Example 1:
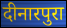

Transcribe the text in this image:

दीनारपुरा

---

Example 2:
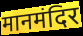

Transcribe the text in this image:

मानमंदिर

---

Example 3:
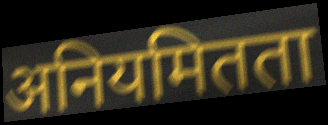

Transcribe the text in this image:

अनियमितता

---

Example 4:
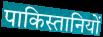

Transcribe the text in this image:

पाकिस्तानियों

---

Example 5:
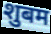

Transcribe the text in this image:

शुबम